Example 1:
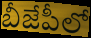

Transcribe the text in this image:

బీజేపీలో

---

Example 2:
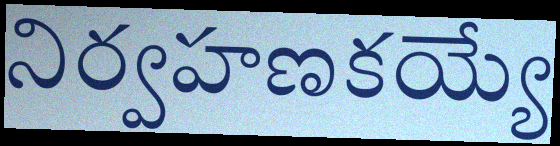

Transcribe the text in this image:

నిర్వహణకయ్యే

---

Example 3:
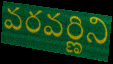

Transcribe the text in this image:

వరవర్ణిని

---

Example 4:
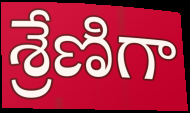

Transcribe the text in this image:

శ్రేణిగా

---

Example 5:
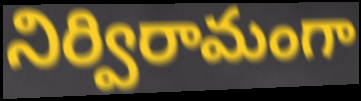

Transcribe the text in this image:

నిర్విరామంగా